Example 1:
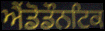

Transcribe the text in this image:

ਐਂਡੋਡੌਨਟਿਕ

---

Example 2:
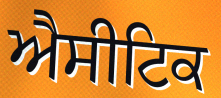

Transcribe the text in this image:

ਐਸੀਟਿਕ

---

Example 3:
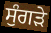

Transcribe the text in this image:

ਸੁੰਗੜੇ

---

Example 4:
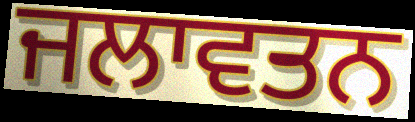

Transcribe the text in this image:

ਜਲਾਵਤਨ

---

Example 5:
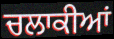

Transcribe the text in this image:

ਚਲਾਕੀਆਂ